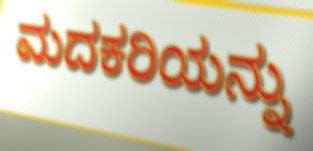
ಮದಕರಿಯನ್ನು